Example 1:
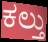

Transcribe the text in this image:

ಕಲ್ತು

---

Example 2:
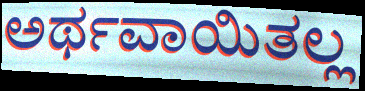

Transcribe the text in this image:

ಅರ್ಥವಾಯಿತಲ್ಲ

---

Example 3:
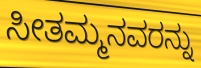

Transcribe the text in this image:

ಸೀತಮ್ಮನವರನ್ನು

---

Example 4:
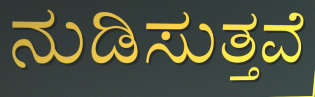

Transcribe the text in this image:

ನುಡಿಸುತ್ತವೆ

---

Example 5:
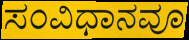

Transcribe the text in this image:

ಸಂವಿಧಾನವೂ